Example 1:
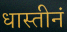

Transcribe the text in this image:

धास्तीनं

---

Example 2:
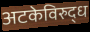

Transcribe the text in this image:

अटकेविरुद्ध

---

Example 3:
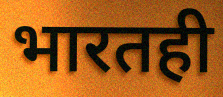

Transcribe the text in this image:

भारतही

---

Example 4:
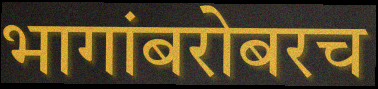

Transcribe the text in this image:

भागांबरोबरच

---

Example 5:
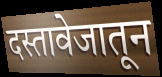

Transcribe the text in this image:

दस्तावेजातून